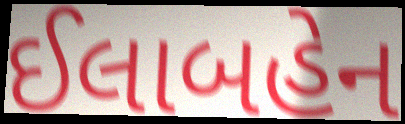
ઈલાબહેન